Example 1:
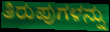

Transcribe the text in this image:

ತಿರುಪುಗಳನ್ನು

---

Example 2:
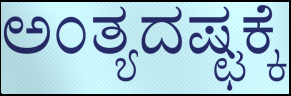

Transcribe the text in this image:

ಅಂತ್ಯದಷ್ಟಕ್ಕೆ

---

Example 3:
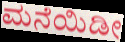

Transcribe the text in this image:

ಮನೆಯಿಡೀ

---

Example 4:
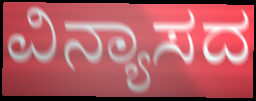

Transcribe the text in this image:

ವಿನ್ಯಾಸದ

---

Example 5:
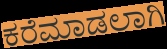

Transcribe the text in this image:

ಕರೆಮಾಡಲಾಗಿ